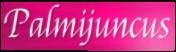
Palmijuncus